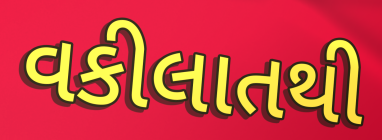
વકીલાતથી